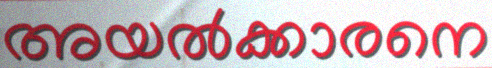
അയൽക്കാരനെ